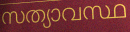
സത്യാവസ്ഥ